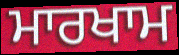
ਮਾਰਖਾਮ